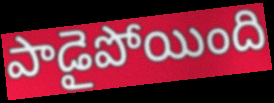
పాడైపోయింది